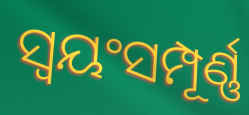
ସ୍ୱୟଂସମ୍ପୂର୍ଣ୍ଣ